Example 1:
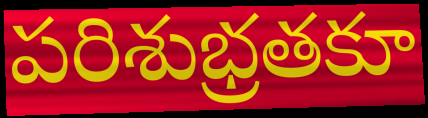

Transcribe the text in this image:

పరిశుభ్రతకూ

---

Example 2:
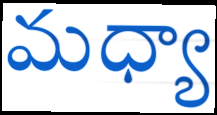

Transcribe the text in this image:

మధ్యా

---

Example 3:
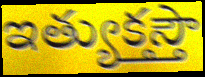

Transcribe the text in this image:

ఇత్యుక్తస్తౌ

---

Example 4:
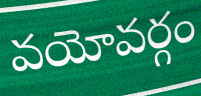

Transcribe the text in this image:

వయోవర్గం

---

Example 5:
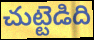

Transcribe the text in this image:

చుట్టెడిది